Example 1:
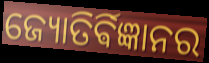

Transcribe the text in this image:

ଜ୍ୟୋତିର୍ଵିଜ୍ଞାନର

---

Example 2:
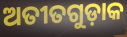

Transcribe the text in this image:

ଅତୀତଗୁଡ଼ାକ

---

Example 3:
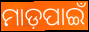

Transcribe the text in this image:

ମାଡ଼ପାଇଁ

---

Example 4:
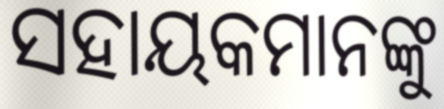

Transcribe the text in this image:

ସହାୟକମାନଙ୍କୁ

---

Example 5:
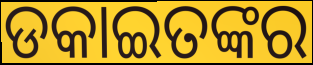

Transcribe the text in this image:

ଡକାଇତଙ୍କର